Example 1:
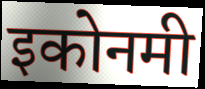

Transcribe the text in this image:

इकोनमी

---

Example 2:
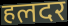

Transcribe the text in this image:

हलदर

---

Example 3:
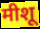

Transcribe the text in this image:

मीशू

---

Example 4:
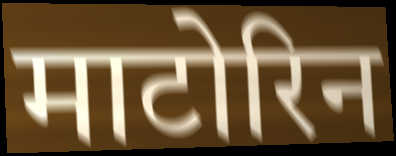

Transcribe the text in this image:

माटोरिन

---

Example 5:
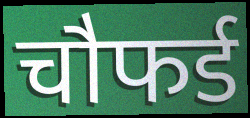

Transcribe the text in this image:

चौफर्ड